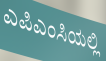
ಎಪಿಎಂಸಿಯಲ್ಲಿ